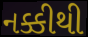
નક્કીથી